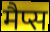
मैप्स